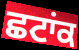
ਛਟਾਂਕ